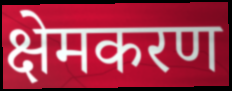
क्षेमकरण